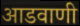
आडवाणी